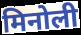
मिनोली